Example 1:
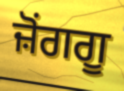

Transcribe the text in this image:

ਜ਼ੋਂਗਗੂ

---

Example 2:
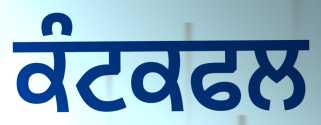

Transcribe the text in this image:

ਕੰਟਕਫਲ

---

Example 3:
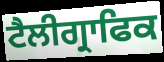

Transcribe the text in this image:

ਟੈਲੀਗ੍ਰਾਫਿਕ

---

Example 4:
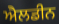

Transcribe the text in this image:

ਐਲਡੀਨ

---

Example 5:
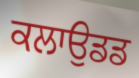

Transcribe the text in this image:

ਕਲਾਉਡਡ